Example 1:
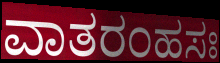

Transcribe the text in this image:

ವಾತರಂಹಸಃ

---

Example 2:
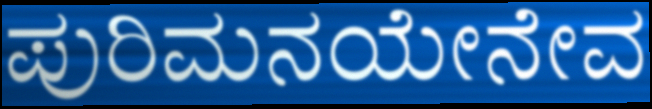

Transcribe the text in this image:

ಪುರಿಮನಯೇನೇವ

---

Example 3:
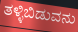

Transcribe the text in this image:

ತಳ್ಳಿಬಿಡುವನು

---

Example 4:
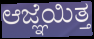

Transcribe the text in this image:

ಆಜ್ಞೆಯಿತ್ತ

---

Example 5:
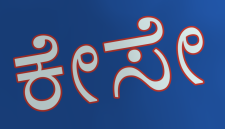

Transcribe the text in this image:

ಕೇಸೇ